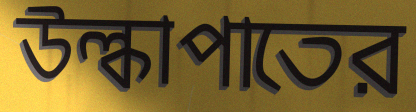
উল্কাপাতের